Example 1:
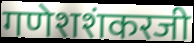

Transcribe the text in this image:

गणेशशंकरजी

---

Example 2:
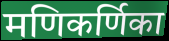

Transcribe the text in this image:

मणिकर्णिका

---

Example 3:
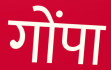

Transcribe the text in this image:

गोंपा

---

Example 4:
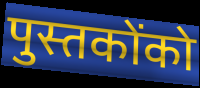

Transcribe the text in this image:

पुस्तकोंको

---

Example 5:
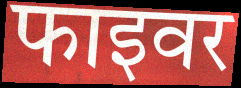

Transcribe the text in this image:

फाइवर